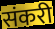
संकरी